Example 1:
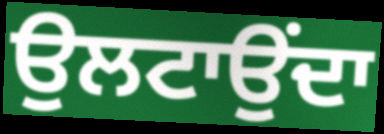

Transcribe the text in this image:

ਉਲਟਾਉਂਦਾ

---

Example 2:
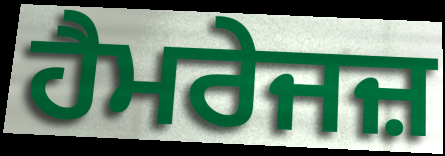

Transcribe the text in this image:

ਹੈਮਰੇਜਜ਼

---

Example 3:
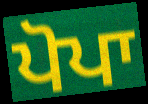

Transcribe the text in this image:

ਪੋਪਾ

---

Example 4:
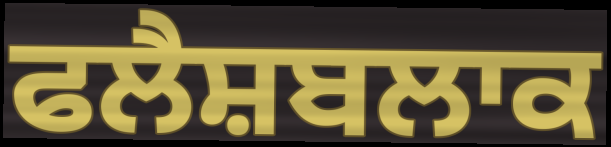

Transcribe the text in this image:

ਫਲੈਸ਼ਬਲਾਕ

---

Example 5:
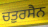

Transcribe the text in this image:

ਚਤੁਰਸੈਨ